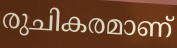
രുചികരമാണ്